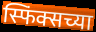
स्फिंक्सच्या